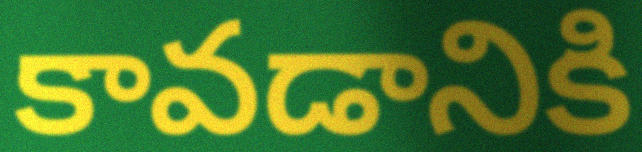
కావడానికి